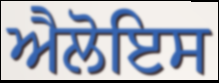
ਐਲੋਇਸ